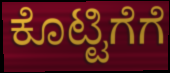
ಕೊಟ್ಟಿಗೆಗೆ